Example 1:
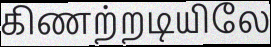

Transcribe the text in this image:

கிணற்றடியிலே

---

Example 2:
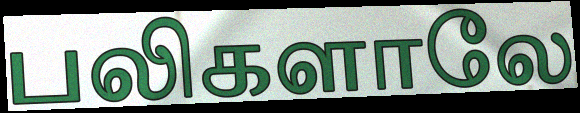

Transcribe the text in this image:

பலிகளாலே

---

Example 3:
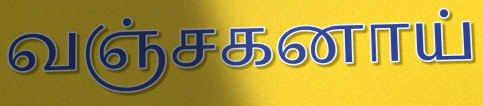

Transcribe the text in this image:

வஞ்சகனாய்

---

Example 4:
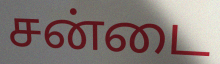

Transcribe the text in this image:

சன்டை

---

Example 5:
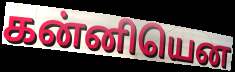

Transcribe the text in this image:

கன்னியென